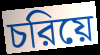
চরিয়ে